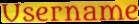
Username